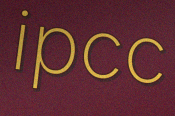
ipcc